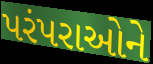
પરંપરાઓને